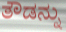
ತೌಡನ್ನು